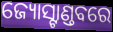
ଜ୍ୟୋସ୍ଟାଣ୍ଡବରେ